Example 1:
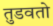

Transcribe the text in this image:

तुडवतो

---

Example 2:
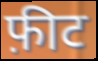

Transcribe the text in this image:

फ़ीट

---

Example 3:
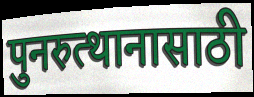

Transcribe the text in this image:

पुनरुत्थानासाठी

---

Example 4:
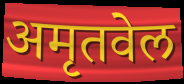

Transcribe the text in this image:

अमृतवेल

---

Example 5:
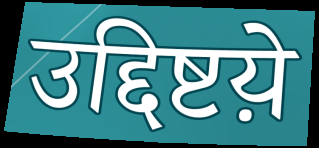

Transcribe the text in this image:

उद्दिष्टय़े